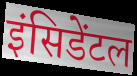
इंसिडेंटल